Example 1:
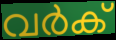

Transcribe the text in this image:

വർക്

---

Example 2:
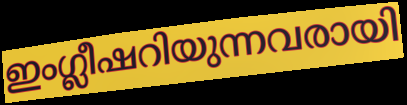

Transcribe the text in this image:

ഇംഗ്ലീഷറിയുന്നവരായി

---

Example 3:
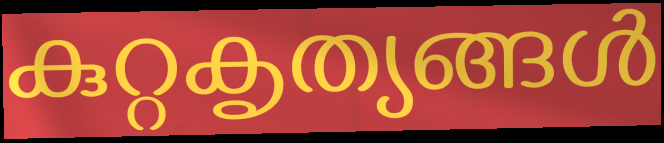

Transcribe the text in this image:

കുറ്റകൃത്യങ്ങൾ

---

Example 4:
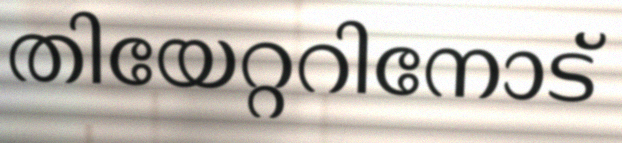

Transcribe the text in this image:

തിയേറ്ററിനോട്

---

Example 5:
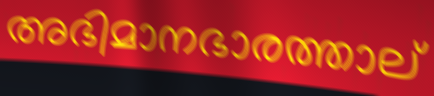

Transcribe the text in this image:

അഭിമാനഭാരത്താല്